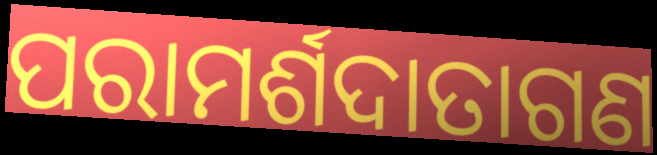
ପରାମର୍ଶଦାତାଗଣ